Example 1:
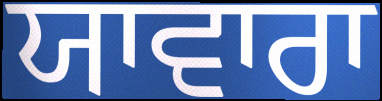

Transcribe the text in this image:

ਯਾਵਾਰਾ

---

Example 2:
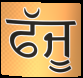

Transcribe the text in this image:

ਫੱਜੂ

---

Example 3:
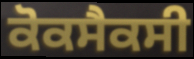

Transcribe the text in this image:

ਕੋਕਸੈਕਸੀ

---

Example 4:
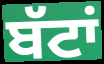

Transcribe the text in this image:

ਬੱਟਾਂ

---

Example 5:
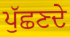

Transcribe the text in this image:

ਪੁੱਛਣਦੇ